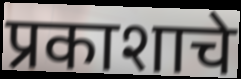
प्रकाशाचे